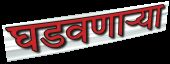
घडवणाऱ्या